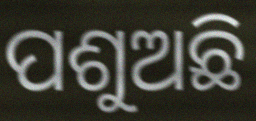
ପଶୁଅଛି